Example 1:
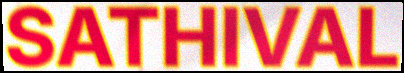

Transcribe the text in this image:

SATHIVAL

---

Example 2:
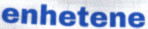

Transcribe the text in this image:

enhetene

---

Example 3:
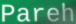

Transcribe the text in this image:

Pareh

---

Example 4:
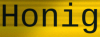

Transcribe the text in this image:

Honig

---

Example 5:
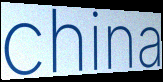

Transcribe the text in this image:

china